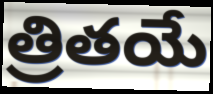
త్రితయే